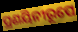
ପ୍ରଣୟିନୀରୂପେ